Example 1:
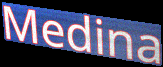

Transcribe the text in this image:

Medina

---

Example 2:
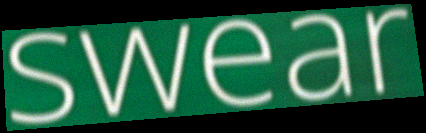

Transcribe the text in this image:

swear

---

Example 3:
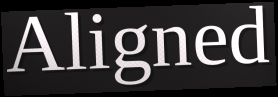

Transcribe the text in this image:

Aligned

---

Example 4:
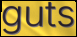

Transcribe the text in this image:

guts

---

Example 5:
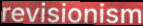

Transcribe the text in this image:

revisionism